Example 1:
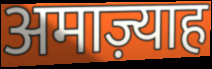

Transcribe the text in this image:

अमाज़्याह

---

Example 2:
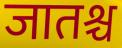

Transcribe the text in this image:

जातश्च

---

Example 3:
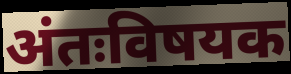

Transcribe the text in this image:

अंतःविषयक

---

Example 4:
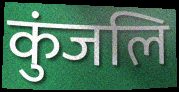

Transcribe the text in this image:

कुंजलि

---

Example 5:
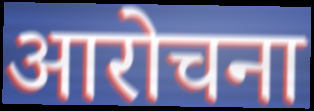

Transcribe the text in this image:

आरोचना